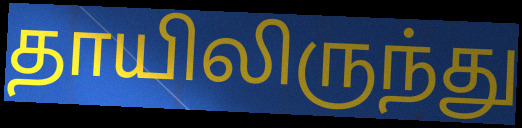
தாயிலிருந்து